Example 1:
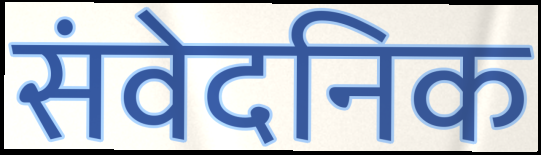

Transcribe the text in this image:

संवेदनिक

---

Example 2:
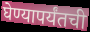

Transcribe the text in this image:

घेण्यापर्यंतची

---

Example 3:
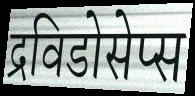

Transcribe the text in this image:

द्रविडोसेप्स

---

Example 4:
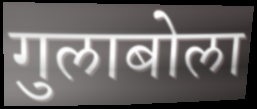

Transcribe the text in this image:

गुलाबोला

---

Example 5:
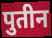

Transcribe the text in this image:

पुतीन